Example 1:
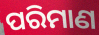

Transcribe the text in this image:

ପରିମାଣ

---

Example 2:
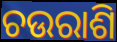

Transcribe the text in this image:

ଚଉରାଶି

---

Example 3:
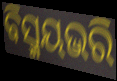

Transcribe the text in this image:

ବିସ୍ମୟଭରି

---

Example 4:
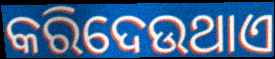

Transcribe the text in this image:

କରିଦେଉଥାଏ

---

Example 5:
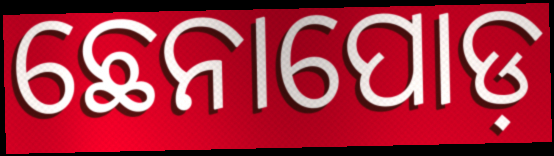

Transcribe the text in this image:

ଛେନାପୋଡ଼